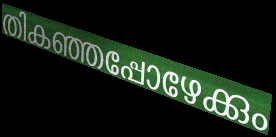
തികഞ്ഞപ്പോഴേക്കും